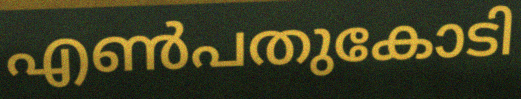
എൺപതുകോടി